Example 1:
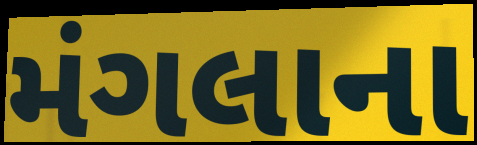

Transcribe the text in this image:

મંગલાના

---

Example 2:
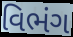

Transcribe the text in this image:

વિભંગ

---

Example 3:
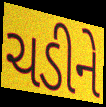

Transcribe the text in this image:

ચડીને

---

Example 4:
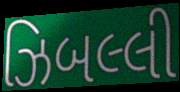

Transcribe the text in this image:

ઝિબલ્લી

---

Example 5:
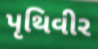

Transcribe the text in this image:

પૃથિવીર